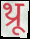
थ्रू